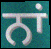
ਨਾਂ